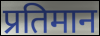
प्रतिमान